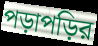
পড়াপড়ির